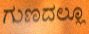
ಗುಣದಲ್ಲೂ